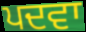
ਪਦਵਾ